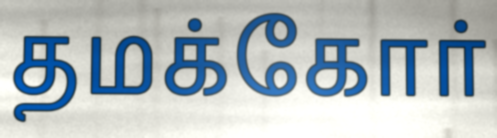
தமக்கோர்